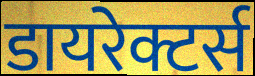
डायरेक्टर्स